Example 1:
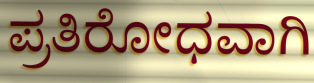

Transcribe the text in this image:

ಪ್ರತಿರೋಧವಾಗಿ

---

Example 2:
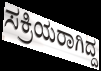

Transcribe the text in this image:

ಸಕ್ರಿಯರಾಗಿದ್ದ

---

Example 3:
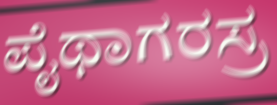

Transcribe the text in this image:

ಪೈಥಾಗರಸ್ರ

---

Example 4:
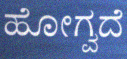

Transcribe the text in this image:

ಹೋಗ್ವದೆ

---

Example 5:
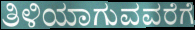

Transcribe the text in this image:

ತಿಳಿಯಾಗುವವರೆಗೆ